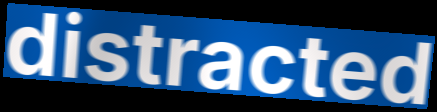
distracted